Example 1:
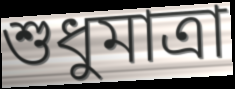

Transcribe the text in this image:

শুধুমাত্রা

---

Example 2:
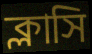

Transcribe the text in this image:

ক্লাসি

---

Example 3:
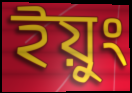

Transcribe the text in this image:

ইয়ুং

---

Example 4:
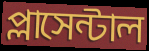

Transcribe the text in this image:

প্লাসেন্টাল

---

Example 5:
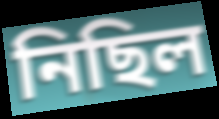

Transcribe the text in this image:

নিছিল